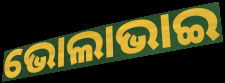
ଭୋଲାଭାଇ